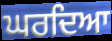
ਘਰਦਿਆ